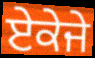
ਏਕੇਜੇ